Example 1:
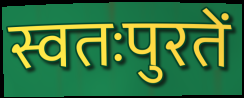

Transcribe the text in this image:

स्वतःपुरतें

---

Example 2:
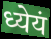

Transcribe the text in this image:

ध्येयं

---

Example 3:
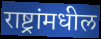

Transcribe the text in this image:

राष्ट्रांमधील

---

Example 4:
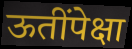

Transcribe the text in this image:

ऊतींपेक्षा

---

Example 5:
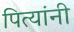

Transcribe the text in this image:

पित्यांनी